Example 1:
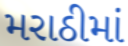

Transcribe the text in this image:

મરાઠીમાં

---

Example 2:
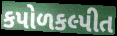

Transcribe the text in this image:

કપોળકલ્પીત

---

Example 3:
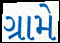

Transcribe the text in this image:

ગ્રામે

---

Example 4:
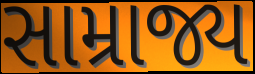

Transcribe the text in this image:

સામ્રાજ્ય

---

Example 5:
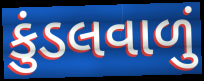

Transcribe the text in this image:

કુંડલવાળું